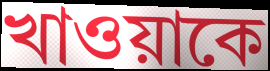
খাওয়াকে